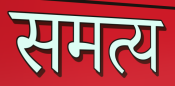
समत्य